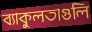
ব্যাকুলতাগুলি